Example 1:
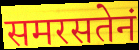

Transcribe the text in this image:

समरसतेनं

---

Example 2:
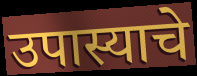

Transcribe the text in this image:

उपास्याचे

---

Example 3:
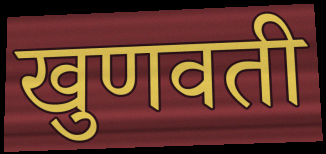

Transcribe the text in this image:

खुणवती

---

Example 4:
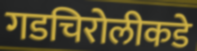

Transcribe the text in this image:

गडचिरोलीकडे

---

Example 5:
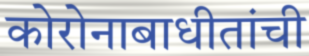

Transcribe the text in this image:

कोरोनाबाधीतांची